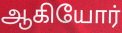
ஆகியோர்